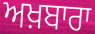
ਅਖ਼ਬਾਰਾ